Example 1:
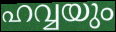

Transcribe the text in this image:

ഹവ്വയും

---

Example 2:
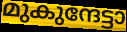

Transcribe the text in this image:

മുകുന്ദേട്ടാ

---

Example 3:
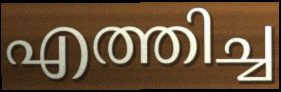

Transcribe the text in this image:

എത്തിച്ച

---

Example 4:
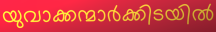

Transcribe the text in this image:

യുവാക്കന്മാർക്കിടയിൽ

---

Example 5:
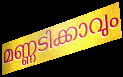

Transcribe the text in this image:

മണ്ണടിക്കാവും